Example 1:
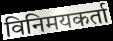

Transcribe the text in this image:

विनिमयकर्ता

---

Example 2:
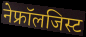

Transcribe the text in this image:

नेफ्रॉलजिस्ट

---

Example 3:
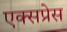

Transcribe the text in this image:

एक्‍सप्रेस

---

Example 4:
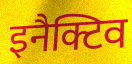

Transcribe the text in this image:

इनैक्टिव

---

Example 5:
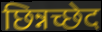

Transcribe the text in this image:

छिन्नच्छेद